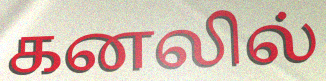
கனலில்